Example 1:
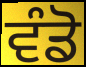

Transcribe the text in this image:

ਵੰਡੋ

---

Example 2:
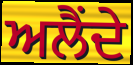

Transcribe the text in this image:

ਅਲੈਂਦੇ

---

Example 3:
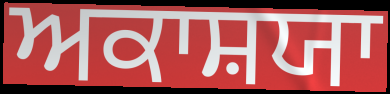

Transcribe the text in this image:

ਅਕਾਸ਼ਯਾ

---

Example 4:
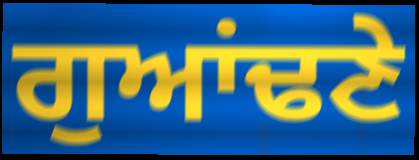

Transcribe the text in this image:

ਗੁਆਂਢਣੇ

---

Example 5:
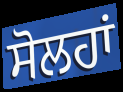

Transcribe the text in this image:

ਸੋਲਹਾਂ